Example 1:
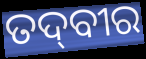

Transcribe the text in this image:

ତଦ୍‌ବୀର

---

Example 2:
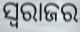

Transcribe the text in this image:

ସ୍ବରାଜର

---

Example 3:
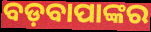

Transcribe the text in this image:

ବଡ଼ବାପାଙ୍କର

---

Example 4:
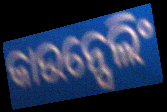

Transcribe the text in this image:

କାଉନ୍ସେଲିଂ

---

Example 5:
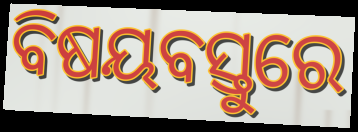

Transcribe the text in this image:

ବିଷୟବସ୍ତୁରେ